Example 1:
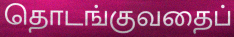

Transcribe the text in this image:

தொடங்குவதைப்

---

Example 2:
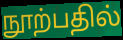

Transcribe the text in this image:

நூற்பதில்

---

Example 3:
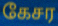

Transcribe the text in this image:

கேசர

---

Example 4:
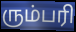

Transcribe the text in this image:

ரும்பரி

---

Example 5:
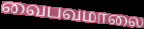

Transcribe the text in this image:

வைபவமாலை